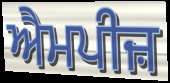
ਐਮਪੀਜ਼